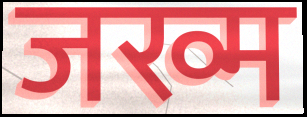
जख्म